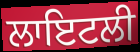
ਲਾਇਟਲੀ